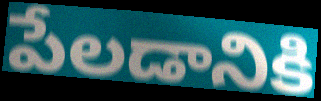
పేలడానికి